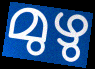
മുഴു